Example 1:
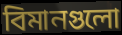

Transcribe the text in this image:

বিমানগুলো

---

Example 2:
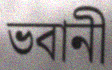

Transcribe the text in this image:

ভবানী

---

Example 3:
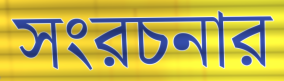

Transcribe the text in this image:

সংরচনার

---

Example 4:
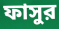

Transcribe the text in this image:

ফাসুর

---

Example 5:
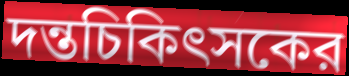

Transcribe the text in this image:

দন্তচিকিৎসকের